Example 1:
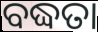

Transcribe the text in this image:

ବଦ୍ଧତା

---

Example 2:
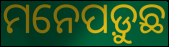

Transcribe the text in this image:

ମନେପଡ଼ୁଛ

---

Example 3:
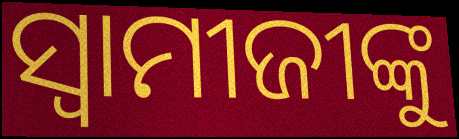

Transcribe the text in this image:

ସ୍ଵାମୀଜୀଙ୍କୁ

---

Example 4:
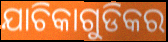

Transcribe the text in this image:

ଯାଚିକାଗୁଡିକର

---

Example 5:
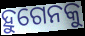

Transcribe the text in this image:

ହୁଗେନକୁ